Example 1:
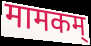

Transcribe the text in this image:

मामकम्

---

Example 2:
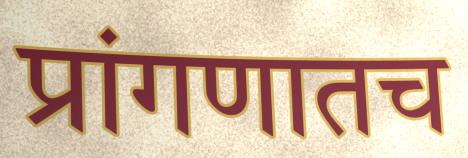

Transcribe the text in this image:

प्रांगणातच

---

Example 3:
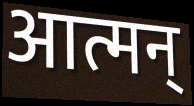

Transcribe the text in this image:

आत्मन्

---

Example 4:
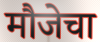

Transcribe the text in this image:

मौजेचा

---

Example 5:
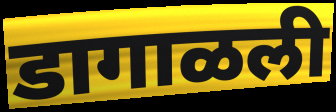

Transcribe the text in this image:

डागाळली